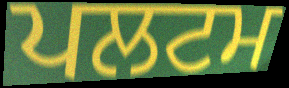
ਪਲਟਮ